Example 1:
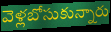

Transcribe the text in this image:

వెళ్లబోసుకున్నారు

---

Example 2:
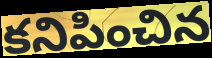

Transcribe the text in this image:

కనిపించిన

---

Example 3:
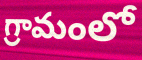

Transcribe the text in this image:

గ్రామంలో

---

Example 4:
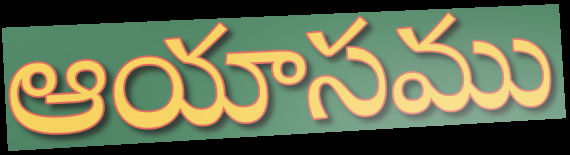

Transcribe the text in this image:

ఆయాసము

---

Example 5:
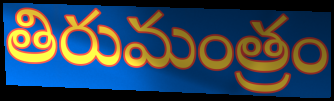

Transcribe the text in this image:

తిరుమంత్రం